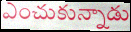
ఎంచుకున్నాడు